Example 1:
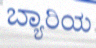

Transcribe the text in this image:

ಬ್ಯಾರಿಯ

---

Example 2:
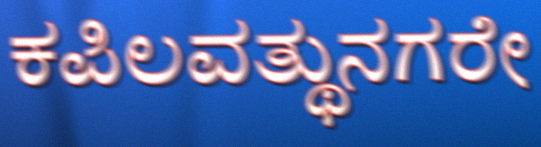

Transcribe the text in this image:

ಕಪಿಲವತ್ಥುನಗರೇ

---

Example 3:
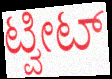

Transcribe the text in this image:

ಟ್ವೀಟ್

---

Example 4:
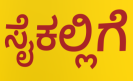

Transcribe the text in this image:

ಸೈಕಲ್ಲಿಗೆ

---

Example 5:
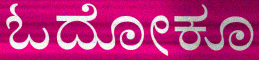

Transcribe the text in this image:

ಓದೋಕೂ